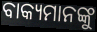
ବାକ୍ୟମାନଙ୍କୁ